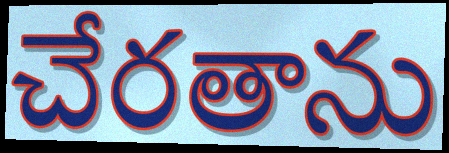
చేరతాను